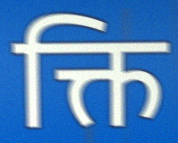
क्ति